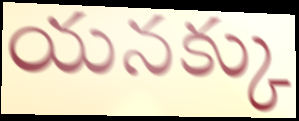
యనక్కు